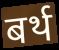
बर्थ